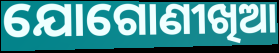
ଯୋଗୋଣୀଖିଆ